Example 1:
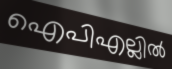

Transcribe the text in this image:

ഐപിഎല്ലിൽ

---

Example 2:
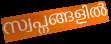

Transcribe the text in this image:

സ്വപ്നങ്ങളിൽ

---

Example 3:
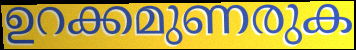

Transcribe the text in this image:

ഉറക്കമുണരുക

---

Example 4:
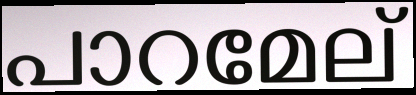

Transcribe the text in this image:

പാറമേല്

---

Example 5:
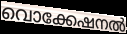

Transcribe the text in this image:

വൊക്കേഷനൽ